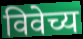
विवेच्य